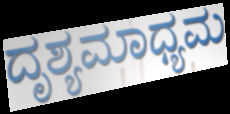
ದೃಶ್ಯಮಾಧ್ಯಮ